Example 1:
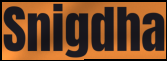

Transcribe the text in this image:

Snigdha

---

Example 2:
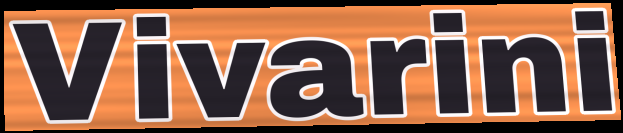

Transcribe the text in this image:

Vivarini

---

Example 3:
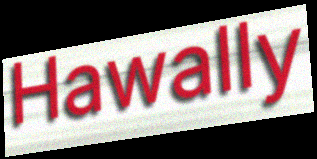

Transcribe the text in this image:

Hawally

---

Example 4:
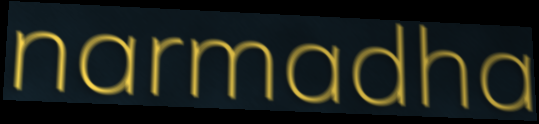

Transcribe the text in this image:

narmadha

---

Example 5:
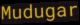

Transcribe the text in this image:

Mudugar